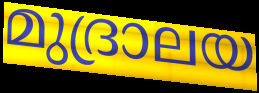
മുദ്രാലയ